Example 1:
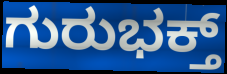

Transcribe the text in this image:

ಗುರುಭಕ್ತ್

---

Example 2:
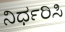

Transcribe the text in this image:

ನಿರ್ಧರಿಸಿ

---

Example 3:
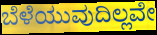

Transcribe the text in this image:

ಬೆಳೆಯುವುದಿಲ್ಲವೇ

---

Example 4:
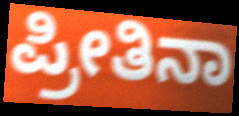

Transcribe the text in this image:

ಪ್ರೀತಿನಾ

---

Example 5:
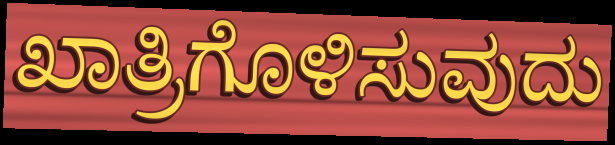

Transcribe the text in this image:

ಖಾತ್ರಿಗೊಳಿಸುವುದು